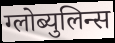
ग्लोब्युलिन्स